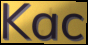
Kac